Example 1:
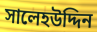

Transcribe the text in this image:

সালেহউদ্দিন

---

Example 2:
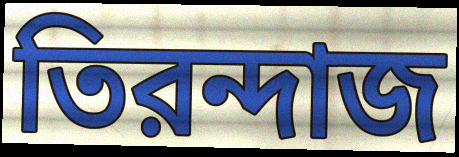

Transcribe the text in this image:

তিরন্দাজ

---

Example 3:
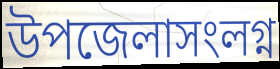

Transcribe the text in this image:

উপজেলাসংলগ্ন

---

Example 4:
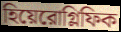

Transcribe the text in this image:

হিয়েরোগ্লিফিক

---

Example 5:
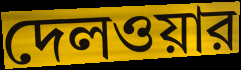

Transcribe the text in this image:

দেলওয়ার